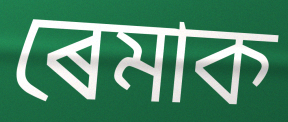
ৰেমাক